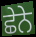
ਛੇਨੇ